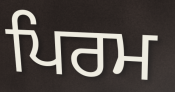
ਪਿਰਮ